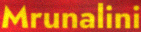
Mrunalini